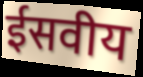
ईसवीय